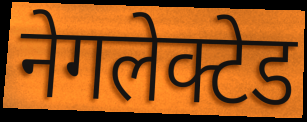
नेगलेक्टेड